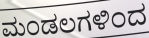
ಮಂಡಲಗಳಿಂದ